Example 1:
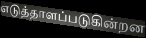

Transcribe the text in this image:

எடுத்தாளப்படுகின்றன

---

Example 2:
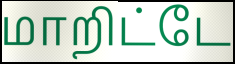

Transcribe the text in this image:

மாறிட்டே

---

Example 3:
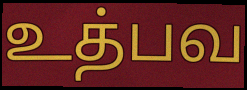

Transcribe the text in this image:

உத்பவ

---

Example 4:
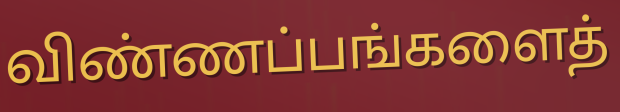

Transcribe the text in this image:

விண்ணப்பங்களைத்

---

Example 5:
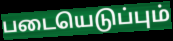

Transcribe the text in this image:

படையெடுப்பும்